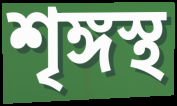
শৃঙ্গস্থ